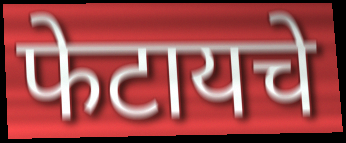
फेटायचे